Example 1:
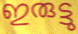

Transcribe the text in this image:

ഇരുട്ടു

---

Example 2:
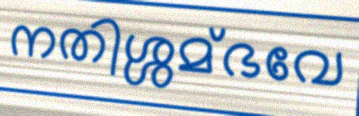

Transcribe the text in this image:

നതിശ്ശമ്ഭവേ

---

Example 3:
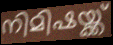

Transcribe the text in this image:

നിമിഷയ്ക്ക്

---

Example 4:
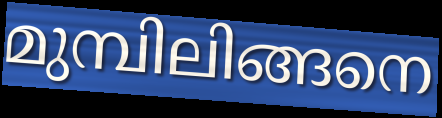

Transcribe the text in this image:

മുമ്പിലിങ്ങനെ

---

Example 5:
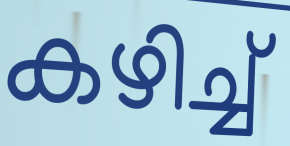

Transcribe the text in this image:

കഴിച്ച്